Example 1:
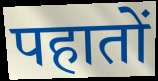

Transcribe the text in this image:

पहातों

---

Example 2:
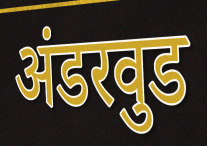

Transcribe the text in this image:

अंडरवुड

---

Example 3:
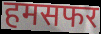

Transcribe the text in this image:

हमसफर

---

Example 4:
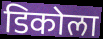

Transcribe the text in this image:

डिकोला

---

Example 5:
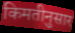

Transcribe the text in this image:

किमतीनुसार